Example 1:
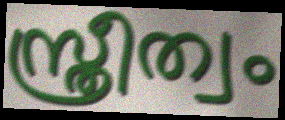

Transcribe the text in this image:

സ്ത്രീത്വം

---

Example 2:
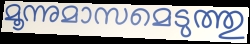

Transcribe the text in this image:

മൂന്നുമാസമെടുത്തു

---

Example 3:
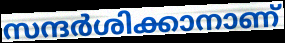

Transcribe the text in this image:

സന്ദർശിക്കാനാണ്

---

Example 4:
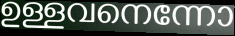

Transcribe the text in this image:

ഉള്ളവനെന്നോ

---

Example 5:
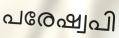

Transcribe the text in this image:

പരേഷ്വപി